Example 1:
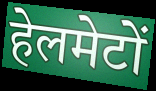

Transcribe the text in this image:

हेलमेटों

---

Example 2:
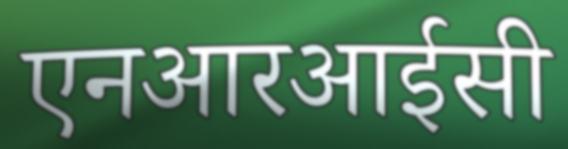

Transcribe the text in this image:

एनआरआईसी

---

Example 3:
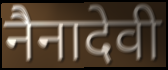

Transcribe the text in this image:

नैनादेवी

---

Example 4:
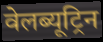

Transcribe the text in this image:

वेलब्यूट्रिन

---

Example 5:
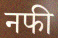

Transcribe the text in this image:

नफी